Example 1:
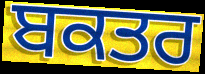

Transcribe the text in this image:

ਬਕਤਰ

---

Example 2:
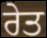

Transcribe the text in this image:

ਰੇਤ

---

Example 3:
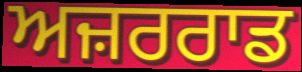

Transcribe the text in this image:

ਅਜ਼ਰਰਾਡ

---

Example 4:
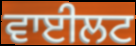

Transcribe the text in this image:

ਵਾਈਲਟ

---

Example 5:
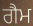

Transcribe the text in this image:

ਗੈਮ